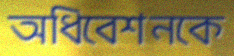
অধিবেশনকে